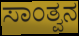
ಸಾಂತ್ವನ